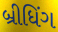
બ્રીધિંગ